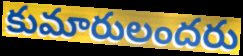
కుమారులందరు